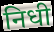
निधी